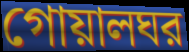
গোয়ালঘর